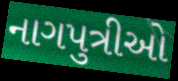
નાગપુત્રીઓ